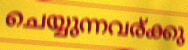
ചെയ്യുന്നവര്ക്കു